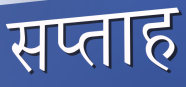
सप्‍ताह